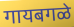
गायबगळे